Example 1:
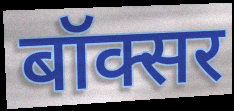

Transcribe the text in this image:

बॉक्सर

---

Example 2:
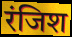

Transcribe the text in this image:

रंजिश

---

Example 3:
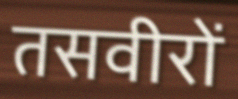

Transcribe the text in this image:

तसवीरों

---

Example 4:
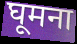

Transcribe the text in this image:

घूमना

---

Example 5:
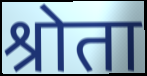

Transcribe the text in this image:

श्रोता